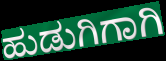
ಹುಡುಗಿಗಾಗಿ